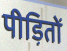
पीड़ितों